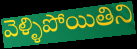
వెళ్ళిపోయితిని